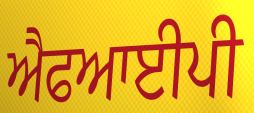
ਐਫਆਈਪੀ